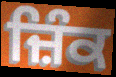
ਜ਼ਿੰਕ